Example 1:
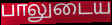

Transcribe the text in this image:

பாலுடைய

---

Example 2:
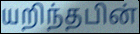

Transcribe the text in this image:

யறிந்தபின்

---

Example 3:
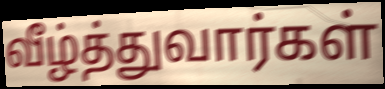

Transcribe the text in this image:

வீழ்த்துவார்கள்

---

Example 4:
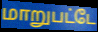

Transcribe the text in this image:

மாறுபட்டே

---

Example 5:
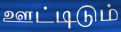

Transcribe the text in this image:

ஊட்டிடும்